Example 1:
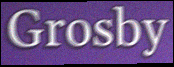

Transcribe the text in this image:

Grosby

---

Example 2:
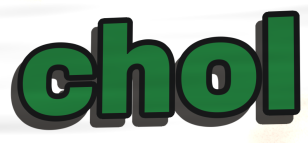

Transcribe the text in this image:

chol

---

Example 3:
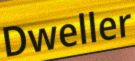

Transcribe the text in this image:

Dweller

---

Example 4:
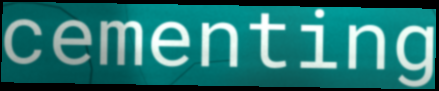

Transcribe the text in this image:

cementing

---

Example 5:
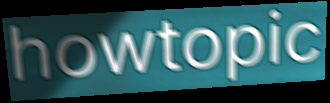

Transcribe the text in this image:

howtopic